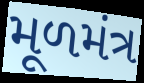
મૂળમંત્ર